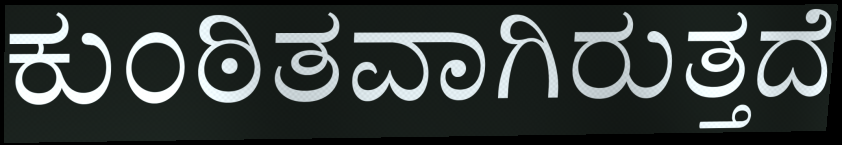
ಕುಂಠಿತವಾಗಿರುತ್ತದೆ